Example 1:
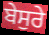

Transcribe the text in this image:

ਬੇਸੁਰੇ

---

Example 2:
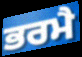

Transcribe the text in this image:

ਭਰਮੈ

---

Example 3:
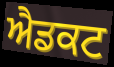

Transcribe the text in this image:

ਐਡਕਟ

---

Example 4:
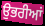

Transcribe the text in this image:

ਉਭਰੀਆਂ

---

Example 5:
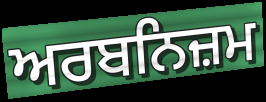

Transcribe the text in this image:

ਅਰਬਨਿਜ਼ਮ